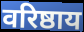
वरिष्ठाय